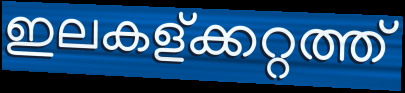
ഇലകള്ക്കറ്റത്ത്